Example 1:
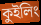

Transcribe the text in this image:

কুইলিং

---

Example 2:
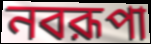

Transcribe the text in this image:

নবরূপা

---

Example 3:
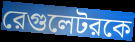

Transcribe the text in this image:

রেগুলেটরকে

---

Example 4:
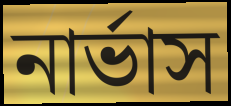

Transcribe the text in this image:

নার্ভাস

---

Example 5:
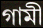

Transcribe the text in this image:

গামী